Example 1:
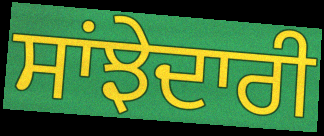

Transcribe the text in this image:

ਸਾਂਝੇਦਾਰੀ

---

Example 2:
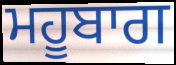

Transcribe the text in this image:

ਮਹੂਬਾਗ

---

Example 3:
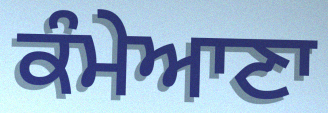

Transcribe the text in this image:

ਕੰਮੇਆਣਾ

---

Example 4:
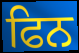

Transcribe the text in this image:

ਫਿਨ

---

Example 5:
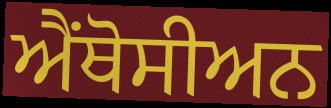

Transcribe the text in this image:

ਐਂਥੋਸੀਅਨ